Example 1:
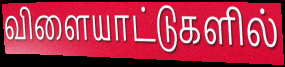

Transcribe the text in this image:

விளையாட்டுகளில்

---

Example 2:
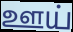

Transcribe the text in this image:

ஊய்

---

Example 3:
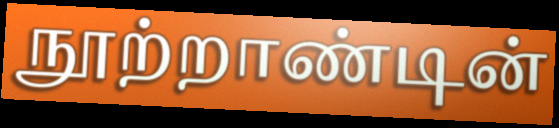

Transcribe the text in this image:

நூற்றாண்டின்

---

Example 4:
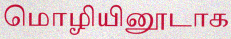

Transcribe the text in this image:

மொழியினூடாக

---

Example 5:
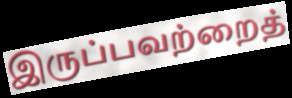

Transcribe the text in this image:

இருப்பவற்றைத்